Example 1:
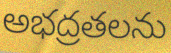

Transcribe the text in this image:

అభద్రతలను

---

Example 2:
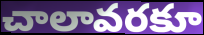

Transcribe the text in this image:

చాలావరకూ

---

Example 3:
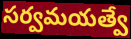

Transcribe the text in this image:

సర్వమయత్వే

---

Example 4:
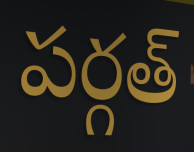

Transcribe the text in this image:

పర్గత్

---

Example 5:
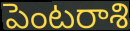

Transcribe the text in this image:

పెంటరాశి